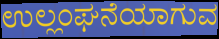
ಉಲ್ಲಂಘನೆಯಾಗುವ